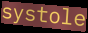
systole